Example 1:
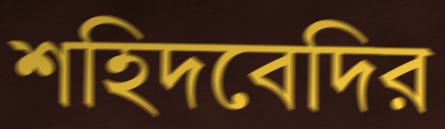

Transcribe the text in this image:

শহিদবেদির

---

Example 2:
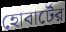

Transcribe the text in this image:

হোবার্টের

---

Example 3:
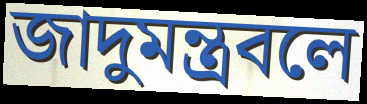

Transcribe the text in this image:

জাদুমন্ত্রবলে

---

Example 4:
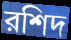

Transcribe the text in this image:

রশিদ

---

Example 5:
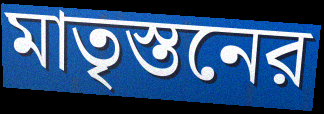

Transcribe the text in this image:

মাতৃস্তনের